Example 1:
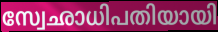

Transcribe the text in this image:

സ്വേഛാധിപതിയായി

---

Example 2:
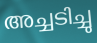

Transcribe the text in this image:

അച്ചടിച്ചു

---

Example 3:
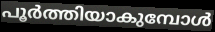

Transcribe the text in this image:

പൂർത്തിയാകുമ്പോൾ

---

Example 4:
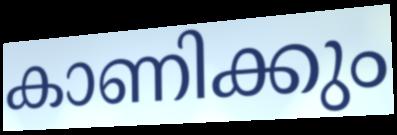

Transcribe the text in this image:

കാണിക്കും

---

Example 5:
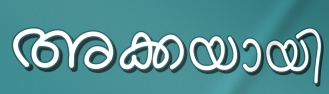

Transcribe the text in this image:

അക്കയായി